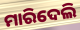
ମାରିଦେଲି